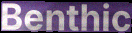
Benthic